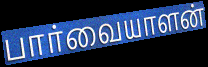
பார்வையாளன்